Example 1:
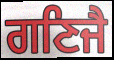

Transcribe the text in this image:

ਗਣਿਜੈ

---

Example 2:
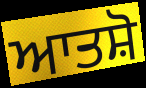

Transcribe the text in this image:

ਆਤਸ਼ੋ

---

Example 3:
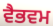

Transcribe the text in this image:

ਵੈਭਵਮ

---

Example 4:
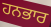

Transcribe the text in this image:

ਹਨਭਾਰ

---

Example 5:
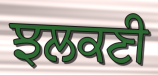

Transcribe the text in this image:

ਝਲਕਣੀ